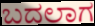
ಬದಲಾಗ